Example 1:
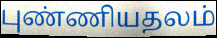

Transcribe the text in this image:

புண்ணியதலம்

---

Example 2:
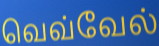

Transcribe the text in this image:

வெவ்வேல்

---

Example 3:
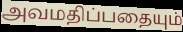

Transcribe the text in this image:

அவமதிப்பதையும்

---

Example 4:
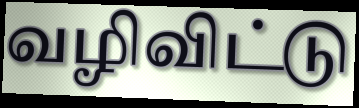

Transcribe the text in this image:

வழிவிட்டு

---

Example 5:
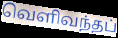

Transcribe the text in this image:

வெளிவந்தப்